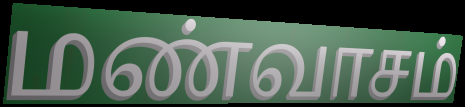
மண்வாசம்